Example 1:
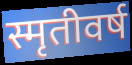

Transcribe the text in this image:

स्मृतीवर्ष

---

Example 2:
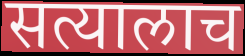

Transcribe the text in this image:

सत्यालाच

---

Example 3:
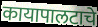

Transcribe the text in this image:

कायापालटाचे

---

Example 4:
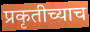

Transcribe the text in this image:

प्रकृतीच्याच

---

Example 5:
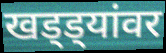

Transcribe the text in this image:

खड्ड्यांवर